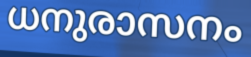
ധനുരാസനം